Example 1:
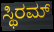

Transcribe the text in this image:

ಸ್ಥಿರಮ್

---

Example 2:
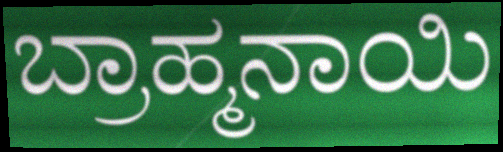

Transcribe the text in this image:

ಬ್ರಾಹ್ಮನಾಯಿ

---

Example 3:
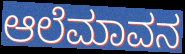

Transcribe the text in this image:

ಆಲೆಮಾವನ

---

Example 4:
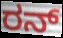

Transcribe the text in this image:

ರನ್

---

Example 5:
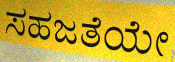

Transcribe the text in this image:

ಸಹಜತೆಯೇ